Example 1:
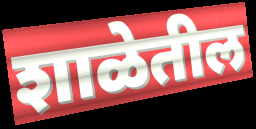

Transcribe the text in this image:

शाळेतील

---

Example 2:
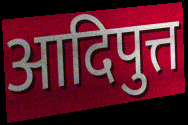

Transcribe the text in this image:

आदिपुत्त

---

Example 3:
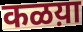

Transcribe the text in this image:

कळय़ा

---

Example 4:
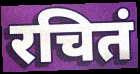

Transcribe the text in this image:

रचितं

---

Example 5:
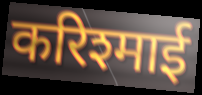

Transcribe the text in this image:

करिश्माई